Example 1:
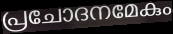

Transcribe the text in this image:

പ്രചോദനമേകും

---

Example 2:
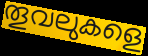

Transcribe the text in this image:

തൂവലുകളെ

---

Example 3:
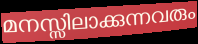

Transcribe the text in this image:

മനസ്സിലാക്കുന്നവരും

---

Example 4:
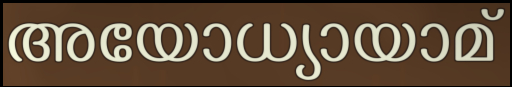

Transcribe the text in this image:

അയോധ്യായാമ്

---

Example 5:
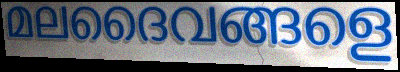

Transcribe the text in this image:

മലദൈവങ്ങളെ